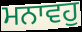
ਮਨਾਵਹੁ